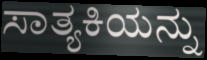
ಸಾತ್ಯಕಿಯನ್ನು